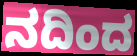
ನದಿಂದ